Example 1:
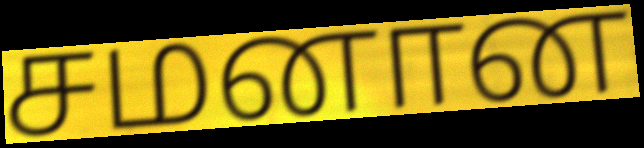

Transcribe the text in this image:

சமனான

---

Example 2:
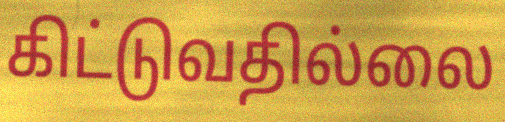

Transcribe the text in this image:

கிட்டுவதில்லை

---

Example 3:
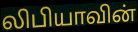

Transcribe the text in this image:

லிபியாவின்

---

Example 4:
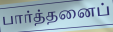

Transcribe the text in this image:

பார்த்தனைப்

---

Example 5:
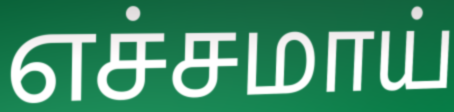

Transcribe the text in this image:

எச்சமாய்